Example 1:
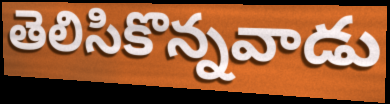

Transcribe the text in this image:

తెలిసికొన్నవాడు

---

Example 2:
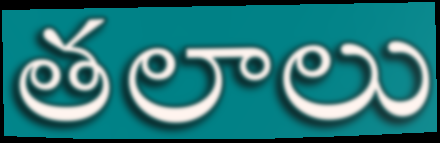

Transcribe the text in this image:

తలాలు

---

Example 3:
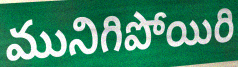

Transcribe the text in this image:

మునిగిపోయిరి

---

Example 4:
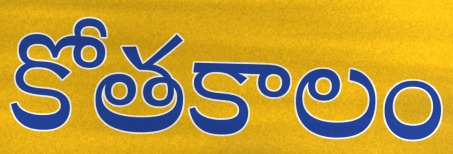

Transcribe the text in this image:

కోతకాలం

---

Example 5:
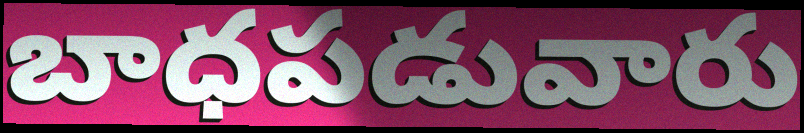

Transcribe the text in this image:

బాధపడువారు